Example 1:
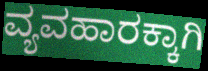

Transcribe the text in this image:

ವ್ಯವಹಾರಕ್ಕಾಗಿ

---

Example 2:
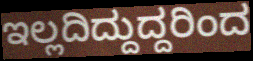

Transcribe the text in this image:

ಇಲ್ಲದಿದ್ದುದ್ದರಿಂದ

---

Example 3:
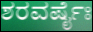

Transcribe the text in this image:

ಶರವರ್ಷೈಃ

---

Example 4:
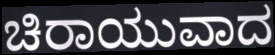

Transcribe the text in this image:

ಚಿರಾಯುವಾದ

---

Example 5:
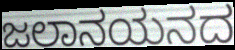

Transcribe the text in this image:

ಜಲಾನಯನದ